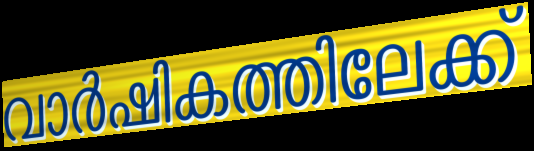
വാർഷികത്തിലേക്ക്